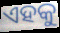
ଏହକୁ